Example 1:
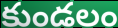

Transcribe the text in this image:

కుండలం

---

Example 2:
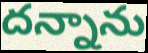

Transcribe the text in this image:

దన్నాను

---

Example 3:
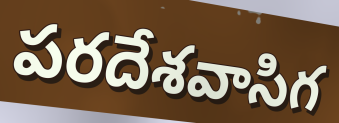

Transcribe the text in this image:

పరదేశవాసిగ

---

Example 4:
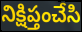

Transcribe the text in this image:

నిక్షిప్తంచేసి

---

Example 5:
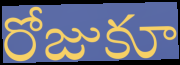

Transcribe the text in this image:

రోజుకూ